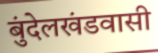
बुंदेलखंडवासी